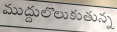
ముద్దులొలుకుతున్న